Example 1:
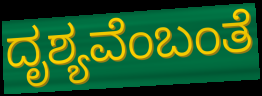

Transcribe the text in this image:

ದೃಶ್ಯವೆಂಬಂತೆ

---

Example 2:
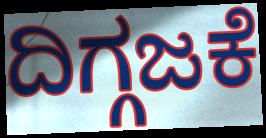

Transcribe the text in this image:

ದಿಗ್ಗಜಕೆ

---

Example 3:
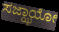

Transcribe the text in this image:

ಸಜ್ಝಾಯೋ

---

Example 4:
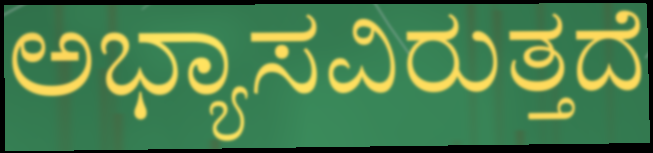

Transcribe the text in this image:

ಅಭ್ಯಾಸವಿರುತ್ತದೆ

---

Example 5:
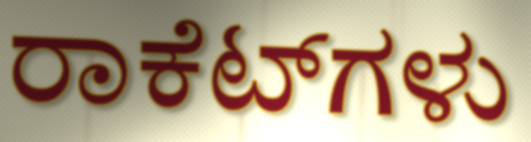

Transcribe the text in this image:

ರಾಕೆಟ್‌ಗಳು